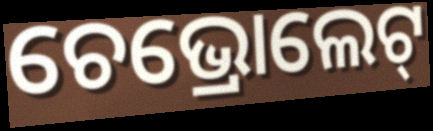
ଚେଭ୍ରୋଲେଟ୍